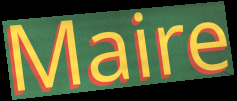
Maire